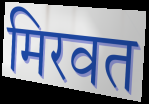
मिरवत